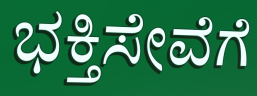
ಭಕ್ತಿಸೇವೆಗೆ